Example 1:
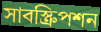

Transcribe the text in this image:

সাবস্ক্রিপশন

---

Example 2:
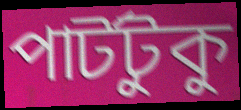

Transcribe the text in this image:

পার্টটুকু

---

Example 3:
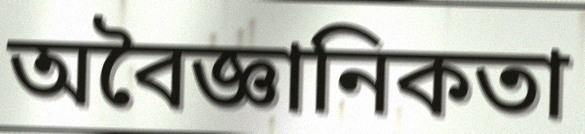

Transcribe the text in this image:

অবৈজ্ঞানিকতা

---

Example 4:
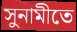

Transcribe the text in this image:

সুনামীতে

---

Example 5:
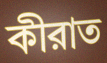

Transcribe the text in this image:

কীরাত